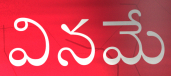
వినమే